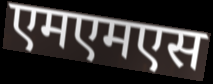
एमएमएस